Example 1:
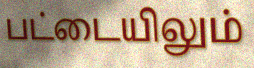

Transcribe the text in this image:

பட்டையிலும்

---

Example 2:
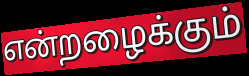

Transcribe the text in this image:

என்றழைக்கும்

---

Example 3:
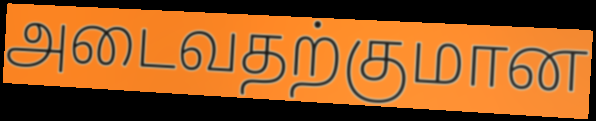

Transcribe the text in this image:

அடைவதற்குமான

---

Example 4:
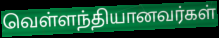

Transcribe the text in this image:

வெள்ளந்தியானவர்கள்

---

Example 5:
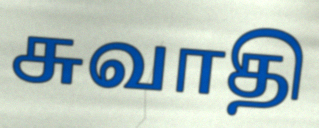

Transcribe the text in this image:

சுவாதி